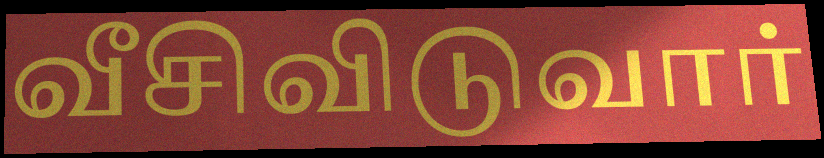
வீசிவிடுவார்